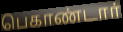
பெகாண்டார்